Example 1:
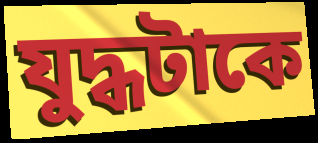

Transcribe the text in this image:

যুদ্ধটাকে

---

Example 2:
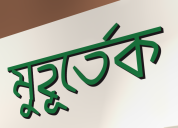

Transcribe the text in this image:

মুহূর্তেক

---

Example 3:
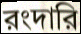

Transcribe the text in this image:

রংদারি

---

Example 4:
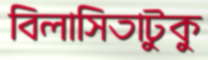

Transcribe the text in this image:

বিলাসিতাটুকু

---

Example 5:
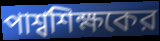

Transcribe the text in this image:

পার্শ্বশিক্ষকের